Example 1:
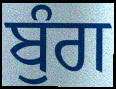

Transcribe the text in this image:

ਬੁੰਗ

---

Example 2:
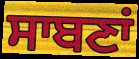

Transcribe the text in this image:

ਸਾਬਣਾਂ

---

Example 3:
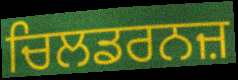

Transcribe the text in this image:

ਚਿਲਡਰਨਜ਼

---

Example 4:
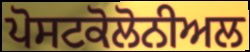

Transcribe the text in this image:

ਪੋਸਟਕੋਲੋਨੀਅਲ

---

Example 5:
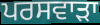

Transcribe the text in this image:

ਪਰਸਵਾੜਾ